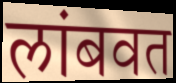
लांबवत